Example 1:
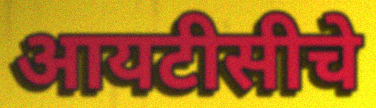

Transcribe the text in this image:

आयटीसीचे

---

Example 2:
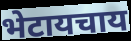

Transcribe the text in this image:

भेटायचाय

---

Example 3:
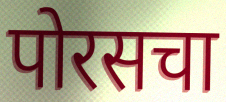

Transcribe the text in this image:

पोरसचा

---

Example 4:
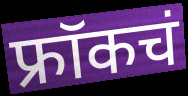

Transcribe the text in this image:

फ्रॉकचं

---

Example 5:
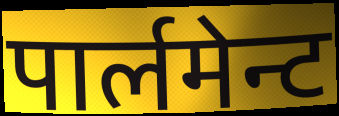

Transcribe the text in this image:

पार्लमेन्ट